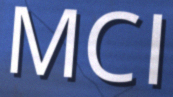
MCI